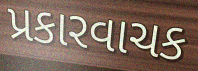
પ્રકારવાચક